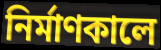
নির্মাণকালে